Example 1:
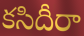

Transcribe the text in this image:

కసిదీరా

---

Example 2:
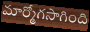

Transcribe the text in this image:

మార్మోగసాగింది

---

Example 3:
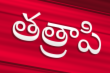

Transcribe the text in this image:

తత్రాపి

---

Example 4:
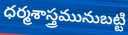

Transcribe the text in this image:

ధర్మశాస్త్రమునుబట్టి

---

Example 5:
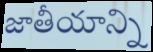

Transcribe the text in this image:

జాతీయాన్ని